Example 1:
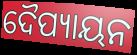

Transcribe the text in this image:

ଦୈପ୍ୟାୟନ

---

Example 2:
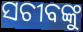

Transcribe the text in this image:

ସଚୀବଙ୍କୁ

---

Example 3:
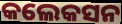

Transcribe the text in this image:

କଲେକସନ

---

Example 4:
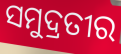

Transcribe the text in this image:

ସମୁଦ୍ରତୀର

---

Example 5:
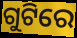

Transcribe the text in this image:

ଗୁଟିରେ